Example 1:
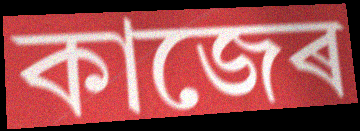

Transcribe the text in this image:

কাজেৰ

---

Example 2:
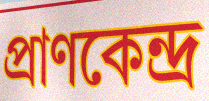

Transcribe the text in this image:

প্ৰাণকেন্দ্ৰ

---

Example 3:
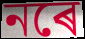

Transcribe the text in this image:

নৰে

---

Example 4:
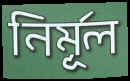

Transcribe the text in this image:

নিৰ্মূল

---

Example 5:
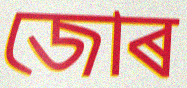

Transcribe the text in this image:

জোৰ